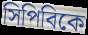
সিপিবিকে